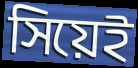
সিয়েই